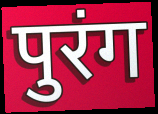
पुरंग